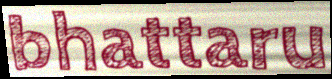
bhattaru